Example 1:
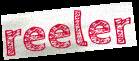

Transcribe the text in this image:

reeler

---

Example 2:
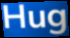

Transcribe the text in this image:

Hug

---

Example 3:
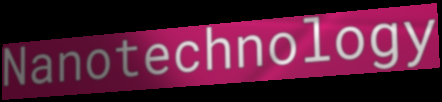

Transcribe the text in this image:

Nanotechnology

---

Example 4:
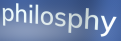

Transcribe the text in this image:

philosphy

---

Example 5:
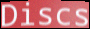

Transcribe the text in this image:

Discs